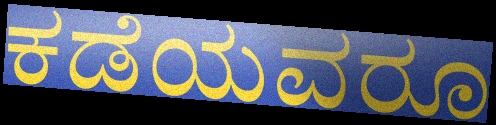
ಕಡೆಯವರೂ